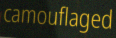
camouflaged